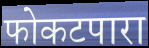
फोकटपारा